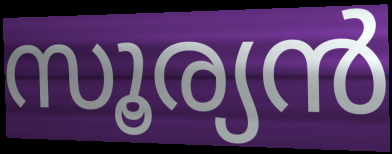
സൂര്യൻ